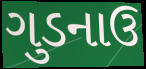
ગુડનાઉ